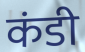
कंडी